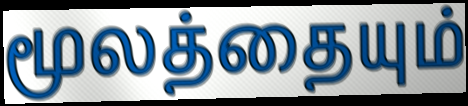
மூலத்தையும்